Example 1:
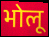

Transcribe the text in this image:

भोलू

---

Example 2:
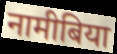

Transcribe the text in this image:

नामीबिया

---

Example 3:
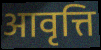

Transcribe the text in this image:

आवृत्ति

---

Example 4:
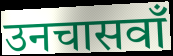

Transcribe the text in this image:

उनचासवाँ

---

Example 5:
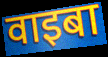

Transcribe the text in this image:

वाइबा